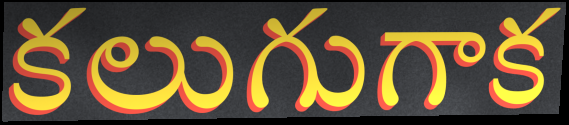
కలుగుగాక